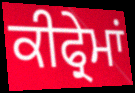
ਕੀਫ੍ਰੇਮਾਂ